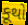
કૂથો